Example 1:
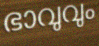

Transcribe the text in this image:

ഭാവുവും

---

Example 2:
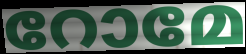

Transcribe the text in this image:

റോമേ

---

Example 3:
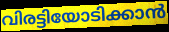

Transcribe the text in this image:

വിരട്ടിയോടിക്കാൻ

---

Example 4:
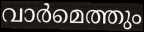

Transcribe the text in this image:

വാർമെത്തും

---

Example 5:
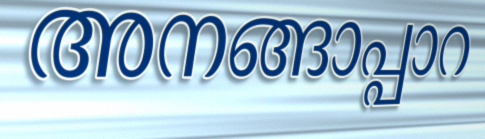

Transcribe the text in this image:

അനങ്ങാപ്പാറ